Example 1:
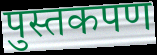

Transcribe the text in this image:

पुस्तकपण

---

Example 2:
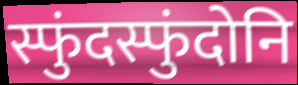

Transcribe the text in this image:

स्फुंदस्फुंदोनि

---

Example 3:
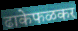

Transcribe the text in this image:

ढाकेफळकर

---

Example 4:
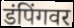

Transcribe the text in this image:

डंपिंगवर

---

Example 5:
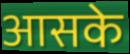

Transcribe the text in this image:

आसके